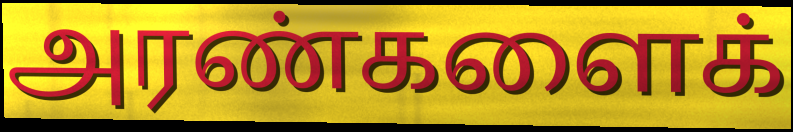
அரண்களைக்